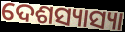
ଦେଶସ୍ୟାସ୍ୟା